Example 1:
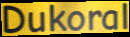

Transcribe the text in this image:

Dukoral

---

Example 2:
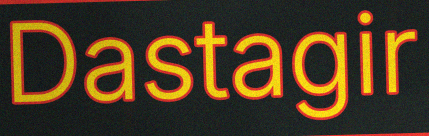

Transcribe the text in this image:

Dastagir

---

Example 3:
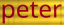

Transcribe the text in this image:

peter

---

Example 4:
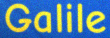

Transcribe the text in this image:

Galile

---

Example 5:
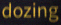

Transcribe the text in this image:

dozing